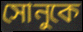
সোনুকে